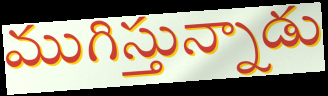
ముగిస్తున్నాడు